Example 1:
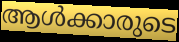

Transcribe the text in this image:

ആൾക്കാരുടെ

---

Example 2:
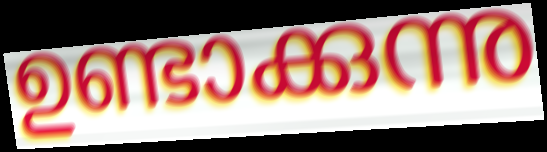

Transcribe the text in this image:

ഉണ്ടാക്കുന്നു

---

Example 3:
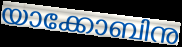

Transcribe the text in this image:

യാക്കോബിനു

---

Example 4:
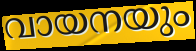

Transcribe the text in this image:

വായനയും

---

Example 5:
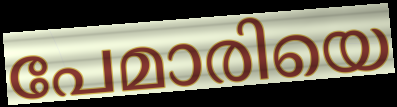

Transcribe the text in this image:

പേമാരിയെ